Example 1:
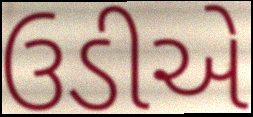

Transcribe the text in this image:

ઉડીએ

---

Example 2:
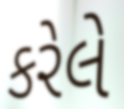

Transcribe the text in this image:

કરેલે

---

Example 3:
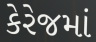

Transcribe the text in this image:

કેરેજમાં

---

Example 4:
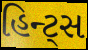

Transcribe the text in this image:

હિન્ટ્સ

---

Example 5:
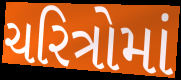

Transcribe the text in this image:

ચરિત્રોમાં